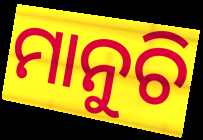
ମାନୁଚି